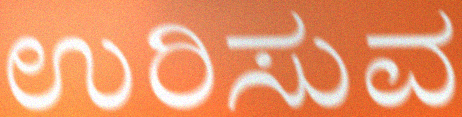
ಉರಿಸುವ